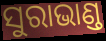
ସୁରାଭାଣ୍ଡ